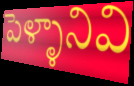
పెళ్ళానివి